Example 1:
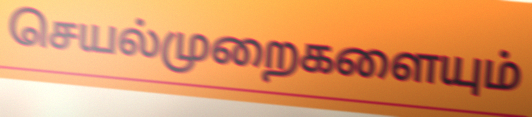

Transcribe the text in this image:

செயல்முறைகளையும்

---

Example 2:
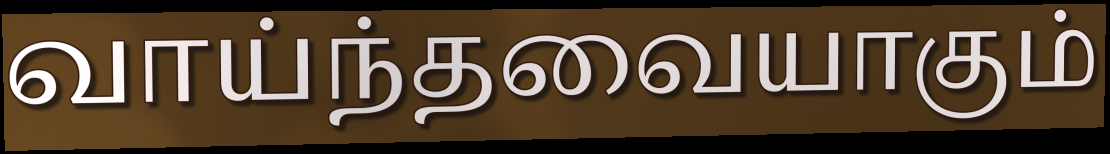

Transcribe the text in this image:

வாய்ந்தவையாகும்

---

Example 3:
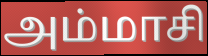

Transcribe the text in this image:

அம்மாசி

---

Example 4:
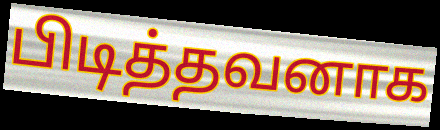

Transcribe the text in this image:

பிடித்தவனாக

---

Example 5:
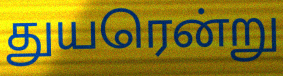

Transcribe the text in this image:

துயரென்று